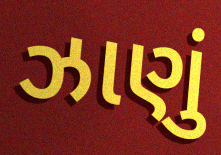
ઝાણું